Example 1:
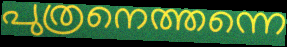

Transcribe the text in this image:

പുത്രനെത്തന്നെ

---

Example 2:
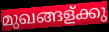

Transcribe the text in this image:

മുഖങ്ങള്ക്കു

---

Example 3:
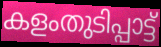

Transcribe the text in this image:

കളംതുടിപ്പാട്ട്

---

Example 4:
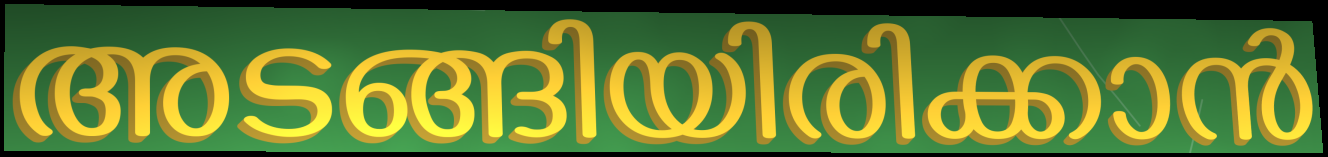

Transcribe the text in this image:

അടങ്ങിയിരിക്കാൻ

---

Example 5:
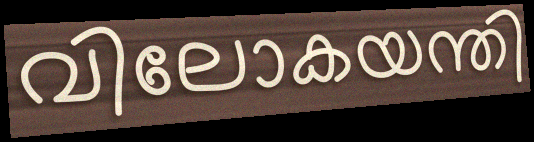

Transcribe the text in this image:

വിലോകയന്തി